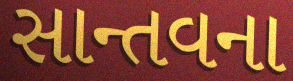
સાન્તવના